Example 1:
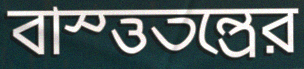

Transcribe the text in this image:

বাস্ত্ততন্ত্রের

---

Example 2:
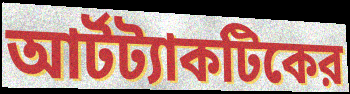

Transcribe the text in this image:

আর্টট্যাকটিকের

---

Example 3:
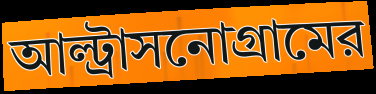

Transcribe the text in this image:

আল্ট্রাসনোগ্রামের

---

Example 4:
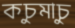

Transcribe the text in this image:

কচুমাচু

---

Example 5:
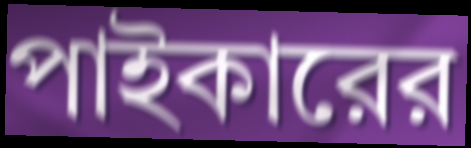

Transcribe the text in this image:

পাইকারের